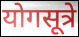
योगसूत्रे